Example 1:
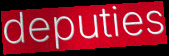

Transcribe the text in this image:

deputies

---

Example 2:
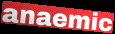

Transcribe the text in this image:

anaemic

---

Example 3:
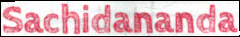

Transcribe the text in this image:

Sachidananda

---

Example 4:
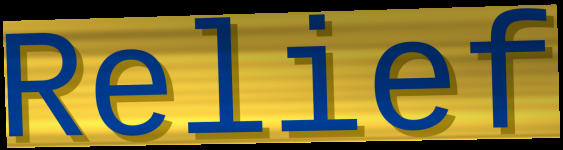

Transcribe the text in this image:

Relief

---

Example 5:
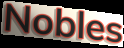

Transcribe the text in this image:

Nobles